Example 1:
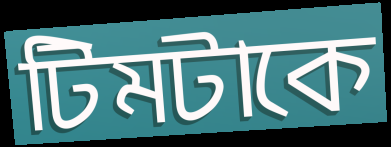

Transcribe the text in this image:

টিমটাকে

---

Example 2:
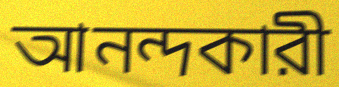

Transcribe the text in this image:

আনন্দকারী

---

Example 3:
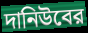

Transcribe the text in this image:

দানিউবের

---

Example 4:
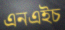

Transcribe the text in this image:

এনএইচ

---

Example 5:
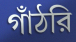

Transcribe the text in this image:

গাঁঠরি